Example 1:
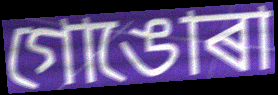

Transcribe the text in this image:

গোঙোৰা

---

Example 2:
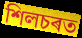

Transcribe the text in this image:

শিলচৰত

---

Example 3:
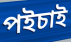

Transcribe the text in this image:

পইচাই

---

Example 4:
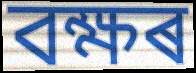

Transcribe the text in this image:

বক্ষৰ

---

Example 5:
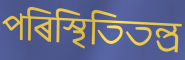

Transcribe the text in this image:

পৰিস্থিতিতন্ত্ৰ